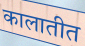
कालातीत